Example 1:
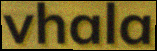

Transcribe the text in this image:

vhala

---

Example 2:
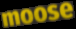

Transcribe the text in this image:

moose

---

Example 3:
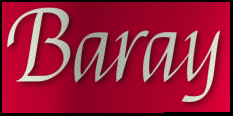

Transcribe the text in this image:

Baray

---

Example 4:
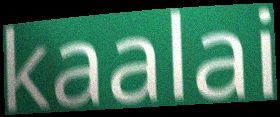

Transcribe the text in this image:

kaalai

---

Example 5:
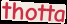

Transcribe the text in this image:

thotta